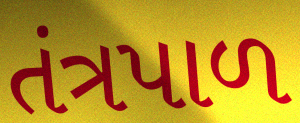
તંત્રપાળ